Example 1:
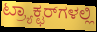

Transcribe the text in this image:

ಟ್ರ್ಯಾಕ್ಟರ್‌ಗಳಲ್ಲಿ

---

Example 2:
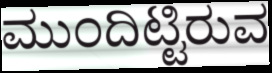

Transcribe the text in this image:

ಮುಂದಿಟ್ಟಿರುವ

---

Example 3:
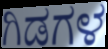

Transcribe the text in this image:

ಗಿಡಗಳ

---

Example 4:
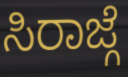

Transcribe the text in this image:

ಸಿರಾಜ್ಗೆ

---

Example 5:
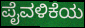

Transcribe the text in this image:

ಪೈವಳಿಕೆಯ